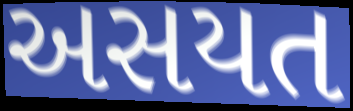
અસયત